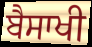
ਬੈਸਾਖੀ